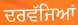
ਦਰਵੱਜਿਆਂ